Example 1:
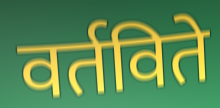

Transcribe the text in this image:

वर्तविते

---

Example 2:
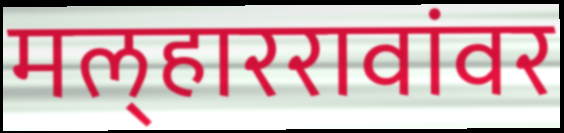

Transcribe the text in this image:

मल्हाररावांवर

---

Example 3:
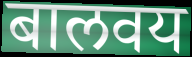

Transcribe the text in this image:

बालवय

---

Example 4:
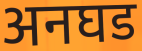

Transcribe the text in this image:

अनघड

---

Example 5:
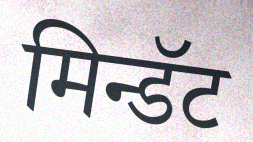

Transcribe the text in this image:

मिन्डॅट